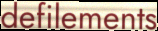
defilements